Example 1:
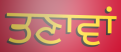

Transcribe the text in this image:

ਤਣਾਵਾਂ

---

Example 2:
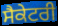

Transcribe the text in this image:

ਸੈਕੇਟਰੀ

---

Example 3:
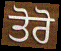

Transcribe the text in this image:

ਤੋਰੋ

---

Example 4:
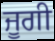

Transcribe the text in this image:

ਜੂਗੀ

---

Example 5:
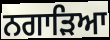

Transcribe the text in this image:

ਨਗਾੜਿਆ